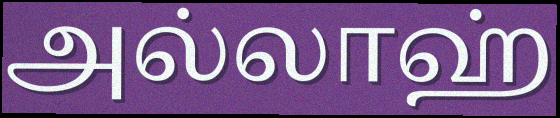
அல்லாஹ்